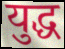
युद्ध